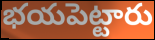
భయపెట్టారు